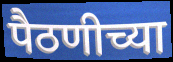
पैठणीच्या